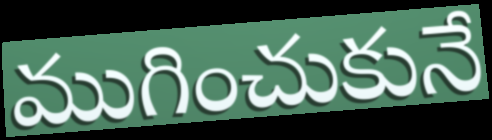
ముగించుకునే